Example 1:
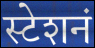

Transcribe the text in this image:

स्टेशनं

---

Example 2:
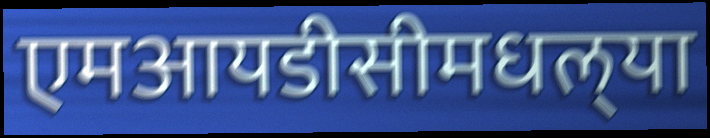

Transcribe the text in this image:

एमआयडीसीमधल्या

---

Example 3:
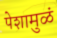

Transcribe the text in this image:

पेशामुळं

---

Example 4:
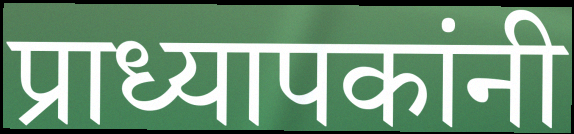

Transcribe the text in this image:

प्राध्यापकांनी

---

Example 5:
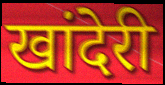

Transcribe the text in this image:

खांदेरी